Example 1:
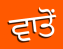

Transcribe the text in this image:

ਵਾਤੋਂ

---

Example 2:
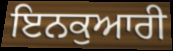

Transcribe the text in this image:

ਇਨਕੁਆਰੀ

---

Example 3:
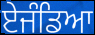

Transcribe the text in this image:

ਏਜੰਡਿਆ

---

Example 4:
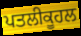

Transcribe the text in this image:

ਪਤਲੀਕੂਹਲ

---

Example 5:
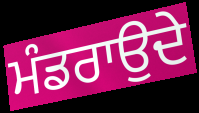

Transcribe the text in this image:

ਮੰਡਰਾਉਦੇ